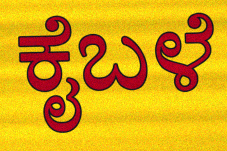
ಕೈಬಳೆ